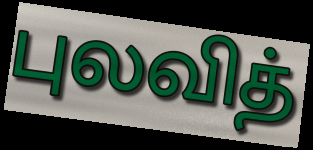
புலவித்